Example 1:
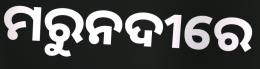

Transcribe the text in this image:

ମରୁନଦୀରେ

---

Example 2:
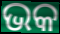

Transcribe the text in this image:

ଭକ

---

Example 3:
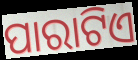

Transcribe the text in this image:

ପାରାଟିଏ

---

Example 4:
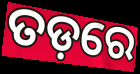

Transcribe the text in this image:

ତଡ଼ରେ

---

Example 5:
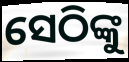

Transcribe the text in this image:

ସେଠିଙ୍କୁ